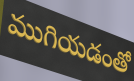
ముగియడంతో